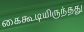
கைகூடியிருந்தது